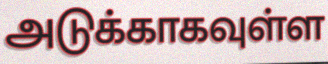
அடுக்காகவுள்ள